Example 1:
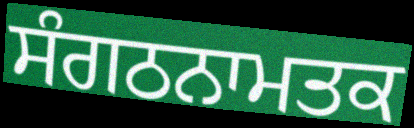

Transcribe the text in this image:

ਸੰਗਠਨਾਮਤਕ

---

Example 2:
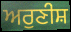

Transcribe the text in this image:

ਅਰੁਣੀਸ਼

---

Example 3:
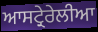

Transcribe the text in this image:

ਆਸਟ੍ਰੇਰੇਲੀਆ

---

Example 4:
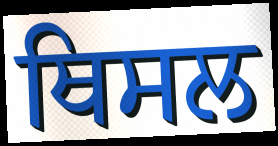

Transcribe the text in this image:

ਥਿਸਲ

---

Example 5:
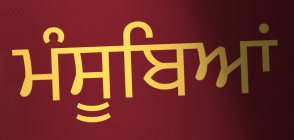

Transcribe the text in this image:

ਮੰਸੂਬਿਆਂ